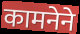
कामनेने